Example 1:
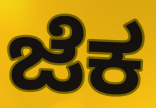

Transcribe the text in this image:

ಜೆಕ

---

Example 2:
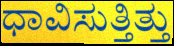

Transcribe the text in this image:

ಧಾವಿಸುತ್ತಿತ್ತು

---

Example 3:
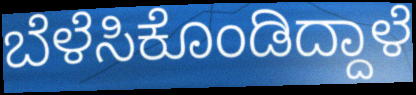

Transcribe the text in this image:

ಬೆಳೆಸಿಕೊಂಡಿದ್ದಾಳೆ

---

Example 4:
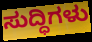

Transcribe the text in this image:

ಸುದ್ಧಿಗಳು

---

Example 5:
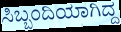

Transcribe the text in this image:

ಸಿಬ್ಬಂದಿಯಾಗಿದ್ದ